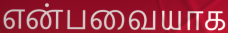
என்பவையாக